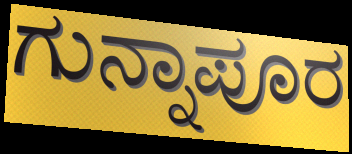
ಗುನ್ನಾಪೂರ